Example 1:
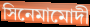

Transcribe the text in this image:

সিনেমামোদী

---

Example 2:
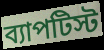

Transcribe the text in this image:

ব্যাপটিস্ট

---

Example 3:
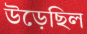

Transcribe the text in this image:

উড়েছিল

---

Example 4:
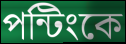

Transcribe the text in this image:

পন্টিংকে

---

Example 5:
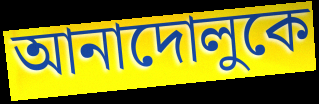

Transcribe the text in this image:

আনাদোলুকে